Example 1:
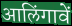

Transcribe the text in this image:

आलिंगावें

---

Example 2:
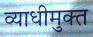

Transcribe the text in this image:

व्याधीमुक्त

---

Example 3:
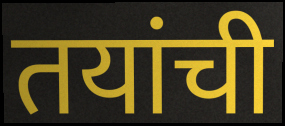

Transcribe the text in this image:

तयांची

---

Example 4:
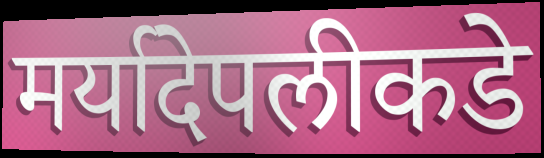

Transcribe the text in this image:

मर्यादेपलीकडे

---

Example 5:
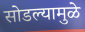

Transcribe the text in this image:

सोडल्यामुळे